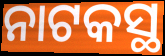
ନାଟକସ୍ଥ